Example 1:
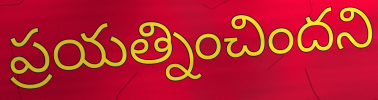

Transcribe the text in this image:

ప్రయత్నించిందని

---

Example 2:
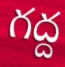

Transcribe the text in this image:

గద్ద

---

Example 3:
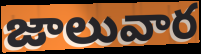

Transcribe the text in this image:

జాలువార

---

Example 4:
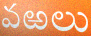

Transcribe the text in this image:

వఱలు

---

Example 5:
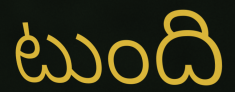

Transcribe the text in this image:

టుంది